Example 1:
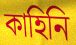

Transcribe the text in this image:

কাহিনি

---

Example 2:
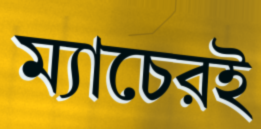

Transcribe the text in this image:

ম্যাচেরই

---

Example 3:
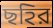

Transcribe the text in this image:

ছহির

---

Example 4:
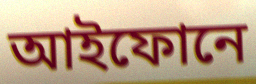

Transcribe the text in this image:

আইফোনে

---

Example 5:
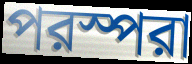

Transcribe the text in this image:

পরস্পরা